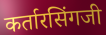
कर्तारसिंगजी